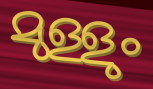
മുള്ളും